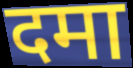
दमा